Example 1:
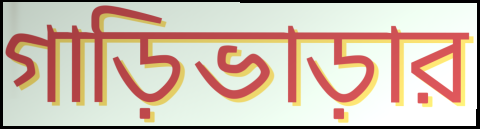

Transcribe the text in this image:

গাড়িভাড়ার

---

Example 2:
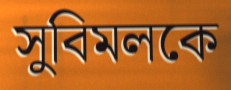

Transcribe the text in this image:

সুবিমলকে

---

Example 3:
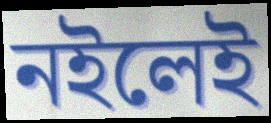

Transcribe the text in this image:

নইলেই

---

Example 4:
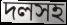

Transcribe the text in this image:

দলসহ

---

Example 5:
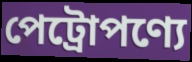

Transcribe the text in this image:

পেট্রোপণ্যে